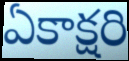
ఏకాక్షరి